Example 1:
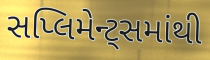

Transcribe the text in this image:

સપ્લિમેન્ટ્સમાંથી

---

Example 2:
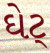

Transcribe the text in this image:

ઘેટ્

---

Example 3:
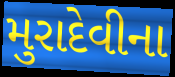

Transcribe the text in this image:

મુરાદેવીના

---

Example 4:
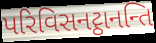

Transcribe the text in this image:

પરિવિસનટ્ઠાનન્તિ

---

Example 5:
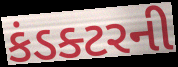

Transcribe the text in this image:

કંડક્ટરની